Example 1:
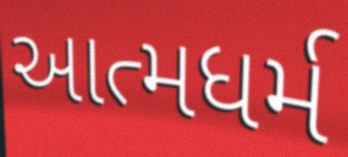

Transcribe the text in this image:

આત્મધર્મ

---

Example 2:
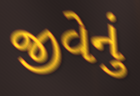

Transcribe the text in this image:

જીવેનું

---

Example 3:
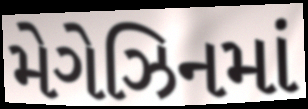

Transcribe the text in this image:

મેગેઝિનમાં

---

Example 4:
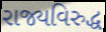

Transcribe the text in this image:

રાજ્યવિરુદ્ધ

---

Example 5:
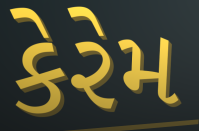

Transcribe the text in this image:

કેરેમ